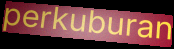
perkuburan